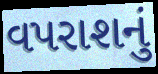
વપરાશનું